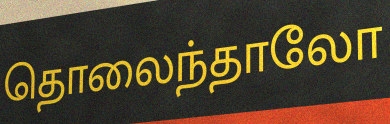
தொலைந்தாலோ